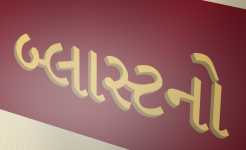
બ્લાસ્ટનો